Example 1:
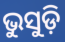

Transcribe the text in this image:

ଭୁସୁଡ଼ି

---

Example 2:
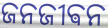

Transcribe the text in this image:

ଜନଜୀଵନ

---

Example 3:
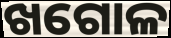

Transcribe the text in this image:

ଖଗୋଳ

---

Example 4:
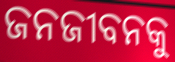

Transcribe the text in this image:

ଜନଜୀବନକୁ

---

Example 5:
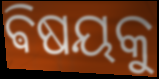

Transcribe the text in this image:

ଵିଷୟକୁ